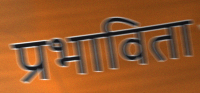
प्रभाविता